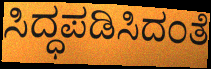
ಸಿದ್ಧಪಡಿಸಿದಂತೆ